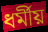
ধর্মীয়